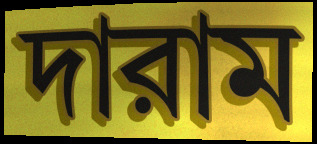
দারাম